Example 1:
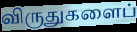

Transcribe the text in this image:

விருதுகளைப்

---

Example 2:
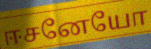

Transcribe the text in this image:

ஈசனேயோ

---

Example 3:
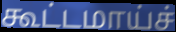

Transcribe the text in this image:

கூட்டமாய்ச்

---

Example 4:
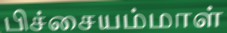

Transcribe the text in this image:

பிச்சையம்மாள்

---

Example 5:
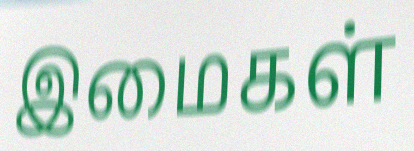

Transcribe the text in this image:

இமைகள்